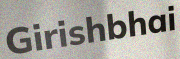
Girishbhai